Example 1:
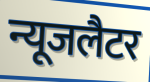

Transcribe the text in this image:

न्यूजलैटर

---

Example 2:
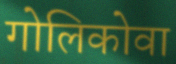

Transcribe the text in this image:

गोलिकोवा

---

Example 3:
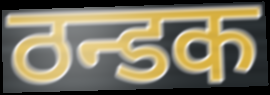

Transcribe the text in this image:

ठन्डक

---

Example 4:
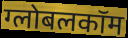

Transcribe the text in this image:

ग्लोबलकॉम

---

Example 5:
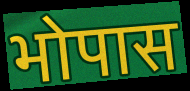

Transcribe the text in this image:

भोपास